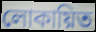
লোকায়িত